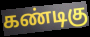
கண்டிகு